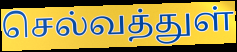
செல்வத்துள்